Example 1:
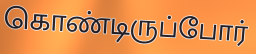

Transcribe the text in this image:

கொண்டிருப்போர்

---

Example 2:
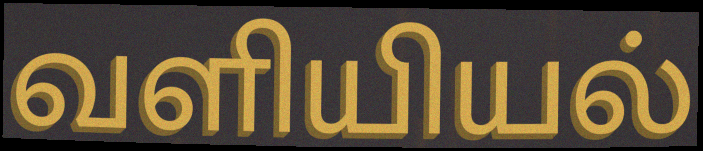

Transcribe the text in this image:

வளியியல்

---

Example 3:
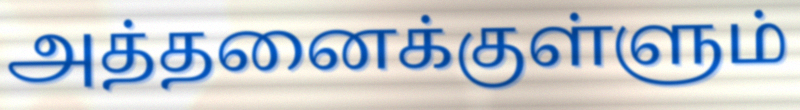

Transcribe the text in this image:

அத்தனைக்குள்ளும்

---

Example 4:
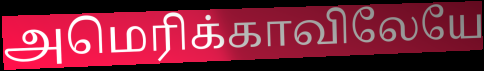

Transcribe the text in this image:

அமெரிக்காவிலேயே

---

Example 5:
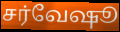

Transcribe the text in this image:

சர்வேஷூ